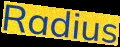
Radius